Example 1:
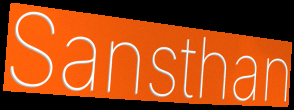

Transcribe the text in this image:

Sansthan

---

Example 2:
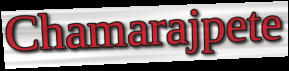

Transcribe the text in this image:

Chamarajpete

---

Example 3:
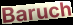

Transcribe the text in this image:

Baruch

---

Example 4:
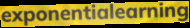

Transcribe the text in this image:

exponentialearning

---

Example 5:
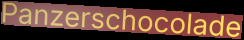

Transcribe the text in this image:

Panzerschocolade